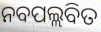
ନବପଲ୍ଲବିତ